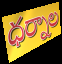
ధర్నాల